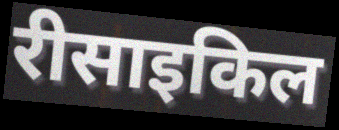
रीसाइकिल